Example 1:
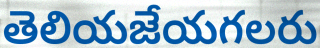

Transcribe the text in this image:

తెలియజేయగలరు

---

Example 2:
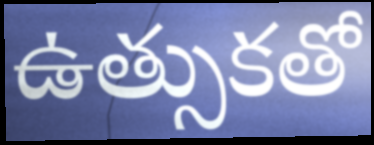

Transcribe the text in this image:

ఉత్సుకతో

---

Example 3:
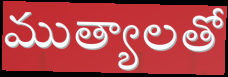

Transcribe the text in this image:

ముత్యాలతో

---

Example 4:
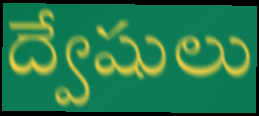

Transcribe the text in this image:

ద్వేషులు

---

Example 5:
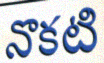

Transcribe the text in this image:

నొకటి